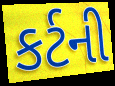
કર્ટની